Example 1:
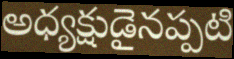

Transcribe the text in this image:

అధ్యక్షుడైనప్పటి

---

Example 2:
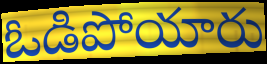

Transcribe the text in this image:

ఓడిపోయారు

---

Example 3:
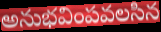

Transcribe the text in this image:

అనుభవింపవలసిన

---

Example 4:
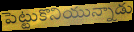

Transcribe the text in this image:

పెట్టుకొనియున్నాడు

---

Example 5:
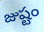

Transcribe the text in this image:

జుష్టం